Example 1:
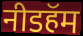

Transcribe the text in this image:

नीडहॅम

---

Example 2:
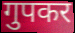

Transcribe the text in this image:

गुपकर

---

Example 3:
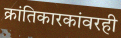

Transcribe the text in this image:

क्रांतिकारकांवरही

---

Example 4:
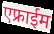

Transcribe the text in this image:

एफ्राईम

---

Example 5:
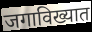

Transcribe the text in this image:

जगाविख्यात